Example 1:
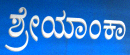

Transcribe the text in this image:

ಶ್ರೇಯಾಂಕಾ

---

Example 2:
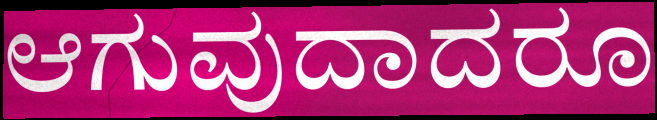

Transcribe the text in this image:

ಆಗುವುದಾದರೂ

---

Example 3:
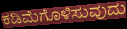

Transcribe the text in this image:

ಕಡಿಮೆಗೊಳಿಸುವುದು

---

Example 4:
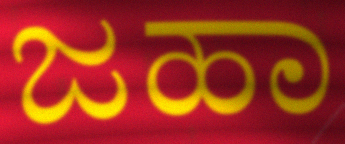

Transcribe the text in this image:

ಜಹಾ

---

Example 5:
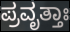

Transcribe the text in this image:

ಪ್ರವೃತ್ತಾಃ